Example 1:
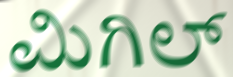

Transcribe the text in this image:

ಮಿಗಿಲ್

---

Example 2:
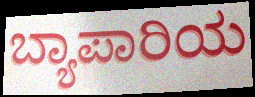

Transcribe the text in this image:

ಬ್ಯಾಪಾರಿಯ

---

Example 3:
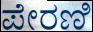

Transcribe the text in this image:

ಪೇರಣಿ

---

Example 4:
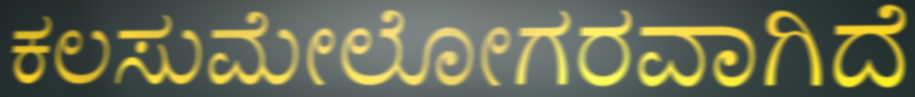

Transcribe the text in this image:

ಕಲಸುಮೇಲೋಗರವಾಗಿದೆ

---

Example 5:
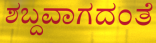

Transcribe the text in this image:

ಶಬ್ದವಾಗದಂತೆ